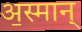
अ॒स्मान्